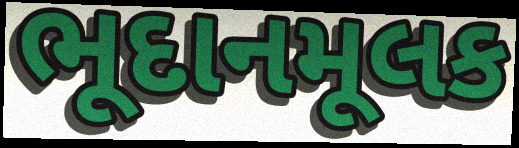
ભૂદાનમૂલક